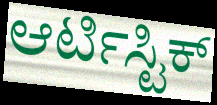
ಆರ್ಟಿಸ್ಟಿಕ್